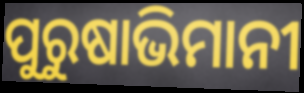
ପୁରୁଷାଭିମାନୀ